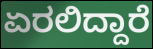
ಏರಲಿದ್ದಾರೆ